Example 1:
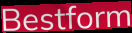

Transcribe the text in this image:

Bestform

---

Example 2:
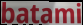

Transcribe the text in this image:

batami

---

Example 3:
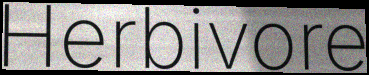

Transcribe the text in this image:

Herbivore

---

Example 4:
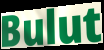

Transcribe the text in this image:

Bulut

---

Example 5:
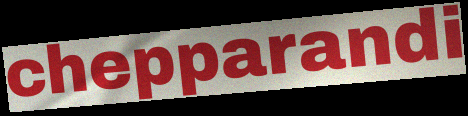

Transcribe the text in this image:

chepparandi